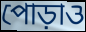
পোড়াও